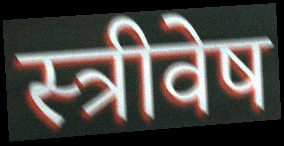
स्त्रीवेष